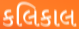
કલિકાલ